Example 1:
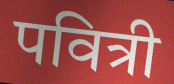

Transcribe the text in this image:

पवित्री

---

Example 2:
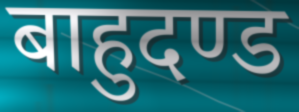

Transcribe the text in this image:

बाहुदण्ड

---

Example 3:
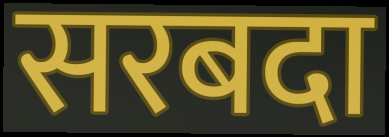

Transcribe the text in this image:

सरबदा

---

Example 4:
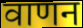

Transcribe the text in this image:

वाणन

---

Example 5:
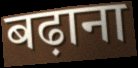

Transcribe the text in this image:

बढ़ाना